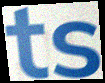
ts